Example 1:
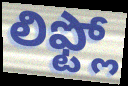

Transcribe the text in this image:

లిఫ్ట్లో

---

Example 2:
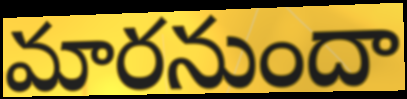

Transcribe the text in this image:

మారనుందా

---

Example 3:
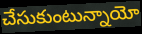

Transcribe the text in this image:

చేసుకుంటున్నాయో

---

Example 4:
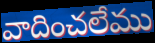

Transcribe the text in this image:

వాదించలేము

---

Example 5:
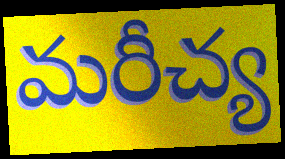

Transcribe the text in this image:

మరీచ్య